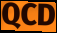
QCD